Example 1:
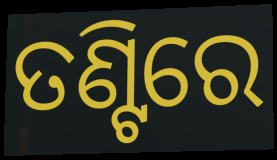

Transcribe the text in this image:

ତଣ୍ଟିରେ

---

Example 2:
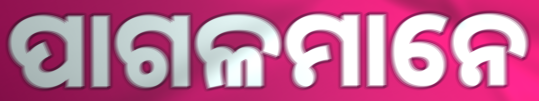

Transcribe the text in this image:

ପାଗଳମାନେ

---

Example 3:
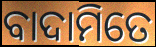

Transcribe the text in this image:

ବାଦାମିତେ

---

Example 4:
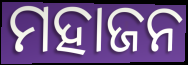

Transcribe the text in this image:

ମହାଜନ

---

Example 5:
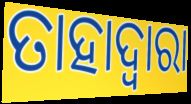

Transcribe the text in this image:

ତାହାଦ୍ଵାରା